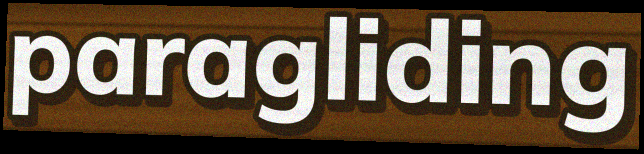
paragliding